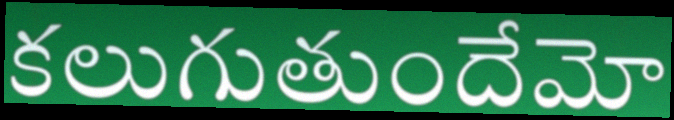
కలుగుతుందేమో